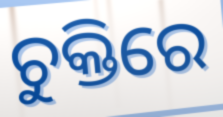
ଚୁକ୍ତିରେ